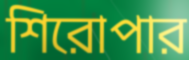
শিরোপার